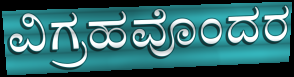
ವಿಗ್ರಹವೊಂದರ